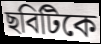
ছবিটিকে